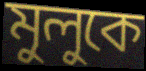
মুলুকে